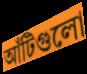
আঁটিগুলো